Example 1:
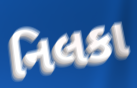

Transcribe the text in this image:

નિલકા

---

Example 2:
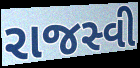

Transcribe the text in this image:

રાજસ્વી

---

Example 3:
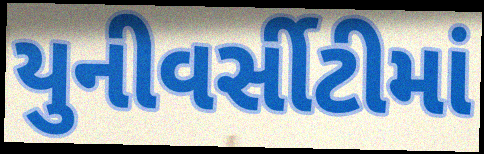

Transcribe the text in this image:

યુનીવર્સીટીમાં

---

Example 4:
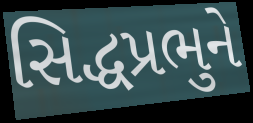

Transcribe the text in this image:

સિદ્ધપ્રભુને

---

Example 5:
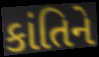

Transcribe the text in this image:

કાંતિને